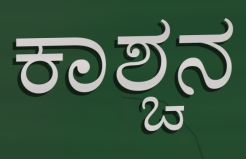
ಕಾಶ್ಚನ